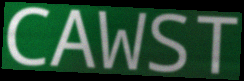
CAWST